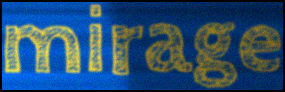
mirage